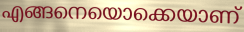
എങ്ങനെയൊക്കെയാണ്